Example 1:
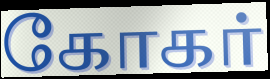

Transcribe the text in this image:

கோகர்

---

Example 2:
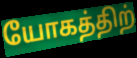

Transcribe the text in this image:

யோகத்திற்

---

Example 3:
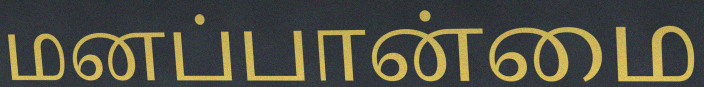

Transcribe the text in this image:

மனப்பான்மை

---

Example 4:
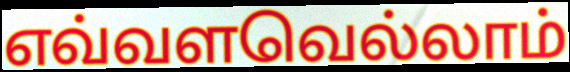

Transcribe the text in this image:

எவ்வளவெல்லாம்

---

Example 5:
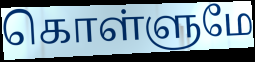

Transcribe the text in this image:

கொள்ளுமே